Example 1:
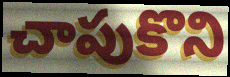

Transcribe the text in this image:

చాపుకొని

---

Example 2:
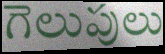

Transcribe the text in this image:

గెలుపులు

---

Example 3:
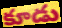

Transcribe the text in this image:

కూడు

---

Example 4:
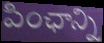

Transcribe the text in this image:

పింఛాన్ని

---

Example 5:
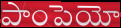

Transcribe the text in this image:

పాంపెయో